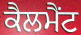
ਕੈਲਮੈਂਟ